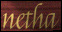
netha